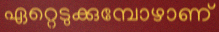
ഏറ്റെടുക്കുമ്പോഴാണ്